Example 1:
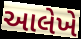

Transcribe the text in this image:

આલેખે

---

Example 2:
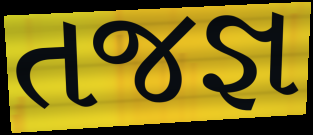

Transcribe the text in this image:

તજજ્ઞ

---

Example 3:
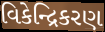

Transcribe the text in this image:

વિકેન્દ્રિકરણ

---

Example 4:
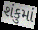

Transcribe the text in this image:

શંકુમાં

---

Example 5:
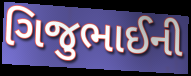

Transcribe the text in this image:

ગિજુભાઈની